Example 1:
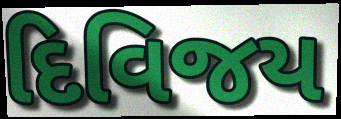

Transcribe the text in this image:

દિવિજય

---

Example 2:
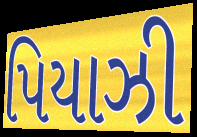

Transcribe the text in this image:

પિયાઝી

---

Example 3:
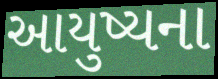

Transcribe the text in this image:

આયુષ્યના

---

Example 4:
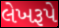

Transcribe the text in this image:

લેખરૂપે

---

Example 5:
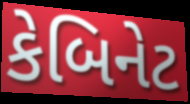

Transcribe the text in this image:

કેબિનેટ